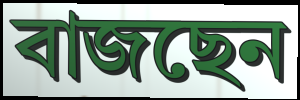
বাজছেন